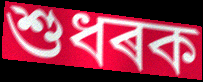
শুধৰক